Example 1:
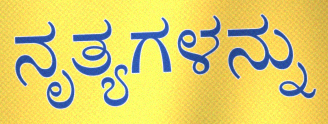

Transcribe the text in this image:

ನೃತ್ಯಗಳನ್ನು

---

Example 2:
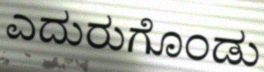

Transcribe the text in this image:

ಎದುರುಗೊಂಡು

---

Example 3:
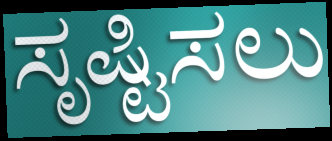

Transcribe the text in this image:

ಸೃಷ್ಟಿಸಲು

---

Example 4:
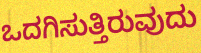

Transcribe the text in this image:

ಒದಗಿಸುತ್ತಿರುವುದು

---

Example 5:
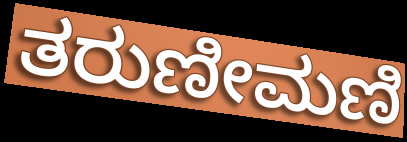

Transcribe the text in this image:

ತರುಣೀಮಣಿ